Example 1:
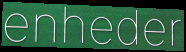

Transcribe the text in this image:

enheder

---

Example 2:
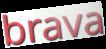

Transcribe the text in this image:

brava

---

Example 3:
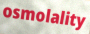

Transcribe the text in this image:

osmolality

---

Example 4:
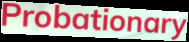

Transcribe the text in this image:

Probationary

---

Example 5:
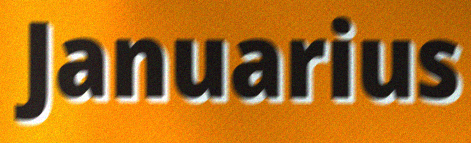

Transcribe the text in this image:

Januarius